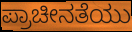
ಪ್ರಾಚೀನತೆಯು